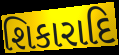
શિકારાદિ